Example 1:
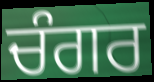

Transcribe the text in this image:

ਚੰਗਰ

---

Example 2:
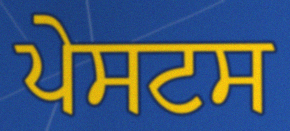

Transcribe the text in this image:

ਪੇਸਟਸ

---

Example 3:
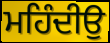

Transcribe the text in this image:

ਮਹਿੰਦੀਉ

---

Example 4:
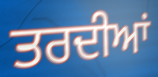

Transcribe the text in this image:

ਤਰਦੀਆਂ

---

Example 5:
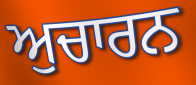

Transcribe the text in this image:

ਅੁਚਾਰਨ